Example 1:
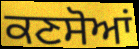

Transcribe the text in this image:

ਕਣਸੋਆਂ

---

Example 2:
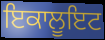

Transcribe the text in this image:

ਇਕਾਲੂਇਟ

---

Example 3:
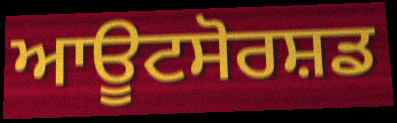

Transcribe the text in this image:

ਆਊਟਸੋਰਸ਼ਡ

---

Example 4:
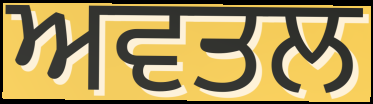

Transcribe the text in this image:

ਅਵਤਲ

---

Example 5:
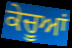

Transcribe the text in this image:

ਕੇਚੂਆਂ